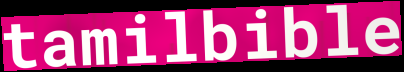
tamilbible